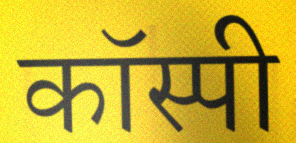
कॉस्पी